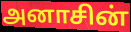
அனாசின்